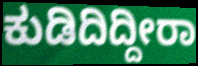
ಕುಡಿದಿದ್ದೀರಾ